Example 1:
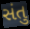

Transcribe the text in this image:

સંતુ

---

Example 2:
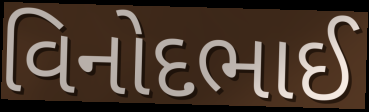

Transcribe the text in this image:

વિનોદભાઈ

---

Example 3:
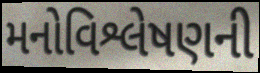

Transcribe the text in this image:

મનોવિશ્લેષણની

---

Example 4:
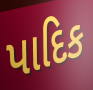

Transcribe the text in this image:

પાદિક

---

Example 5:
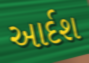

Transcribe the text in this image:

આર્દશ